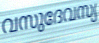
വസുദേവസ്യ